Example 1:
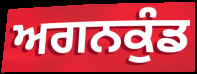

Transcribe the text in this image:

ਅਗਨਕੁੰਡ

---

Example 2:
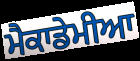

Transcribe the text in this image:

ਮੈਕਾਡੇਮੀਆ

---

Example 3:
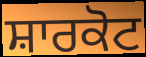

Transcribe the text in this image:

ਸ਼ਾਰਕੋਟ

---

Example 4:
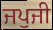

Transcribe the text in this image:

ਜਪੁਜੀ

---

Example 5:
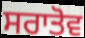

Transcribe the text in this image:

ਸਰਾਤੋਵ